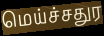
மெய்ச்சதுர